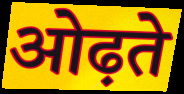
ओढ़ते